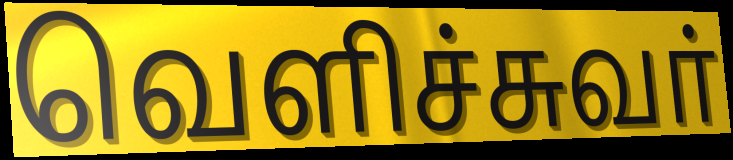
வெளிச்சுவர்